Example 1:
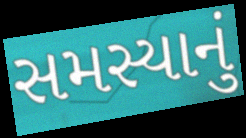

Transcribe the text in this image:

સમસ્યાનું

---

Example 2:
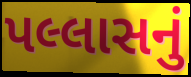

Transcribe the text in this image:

પલ્લાસનું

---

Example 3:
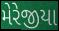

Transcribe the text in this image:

મેરેજીયા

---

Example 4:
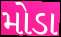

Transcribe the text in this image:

મોડા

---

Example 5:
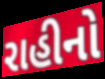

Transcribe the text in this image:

રાહીનો